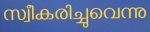
സ്വീകരിച്ചുവെന്നു